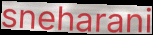
sneharani